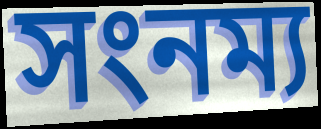
সংনম্য